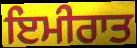
ਇਮੀਰਾਤ